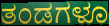
ತಂಡಗಳೂ